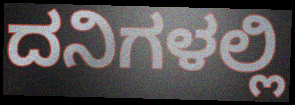
ದನಿಗಳಲ್ಲಿ